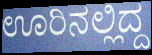
ಊರಿನಲ್ಲಿದ್ದ